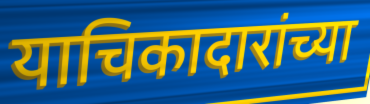
याचिकादारांच्या